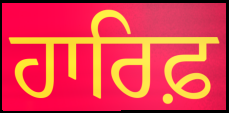
ਹਾਰਿਫ਼